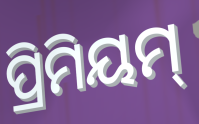
ପ୍ରିମିୟମ୍